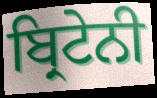
ਬ੍ਰਿਟੇਨੀ